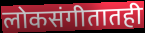
लोकसंगीतातही